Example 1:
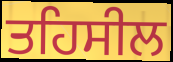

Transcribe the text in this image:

ਤਹਿਸੀਲ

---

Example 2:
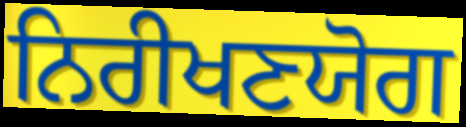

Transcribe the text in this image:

ਨਿਰੀਖਣਯੋਗ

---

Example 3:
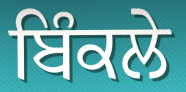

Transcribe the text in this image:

ਬਿੰਕਲੇ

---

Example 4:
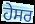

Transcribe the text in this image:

ਹੇਸਰ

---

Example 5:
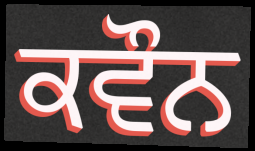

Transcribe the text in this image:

ਕਵੌਨ